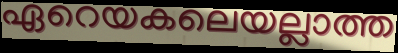
ഏറെയകലെയല്ലാത്ത